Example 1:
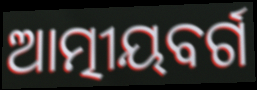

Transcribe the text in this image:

ଆତ୍ମୀୟବର୍ଗ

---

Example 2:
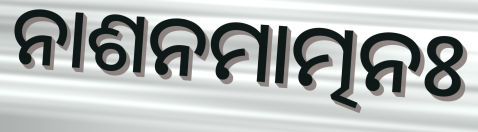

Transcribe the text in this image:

ନାଶନମାତ୍ମନଃ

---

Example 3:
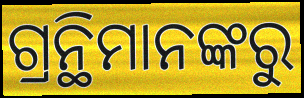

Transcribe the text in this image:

ଗ୍ରନ୍ଥିମାନଙ୍କରୁ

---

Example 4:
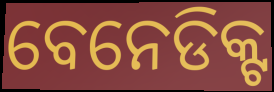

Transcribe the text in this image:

ବେନେଡିକ୍ଟ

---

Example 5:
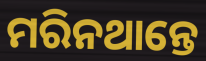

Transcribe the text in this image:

ମରିନଥାନ୍ତେ